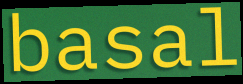
basal